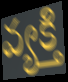
వ్యక్తి